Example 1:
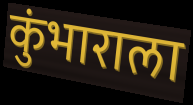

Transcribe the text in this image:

कुंभाराला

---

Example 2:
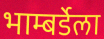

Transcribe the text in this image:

भाम्बर्डेला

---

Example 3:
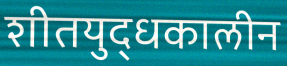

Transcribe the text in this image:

शीतयुद्धकालीन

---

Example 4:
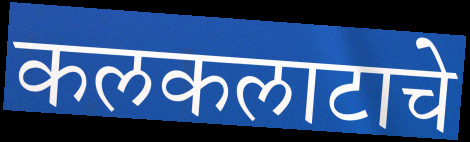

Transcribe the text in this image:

कलकलाटाचे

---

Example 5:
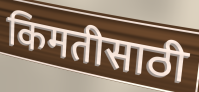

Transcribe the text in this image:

किमतीसाठी